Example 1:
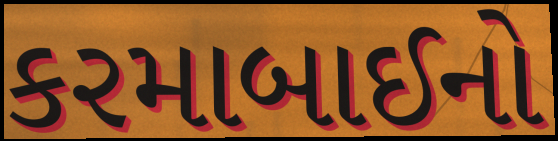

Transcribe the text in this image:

કરમાબાઈનો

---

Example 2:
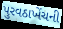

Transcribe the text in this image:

પુરવઠાખેંચની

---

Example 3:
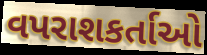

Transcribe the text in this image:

વપરાશકર્તાઓ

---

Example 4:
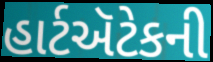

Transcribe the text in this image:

હાર્ટઍટેકની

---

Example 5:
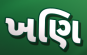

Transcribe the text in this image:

ખણિ